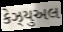
કેઝ્યુઅલ